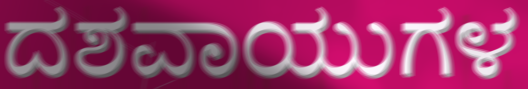
ದಶವಾಯುಗಳ